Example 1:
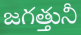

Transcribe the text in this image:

జగత్తునీ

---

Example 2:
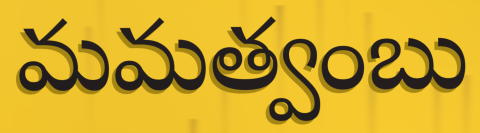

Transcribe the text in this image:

మమత్వంబు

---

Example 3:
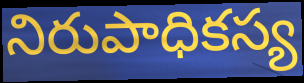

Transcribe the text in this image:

నిరుపాధికస్య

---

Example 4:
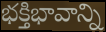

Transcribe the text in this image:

భక్తిభావాన్ని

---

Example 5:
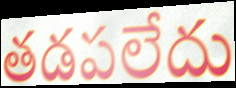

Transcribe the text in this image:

తడపలేదు